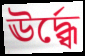
ঊর্দ্ধ্বে